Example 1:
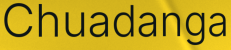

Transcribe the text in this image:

Chuadanga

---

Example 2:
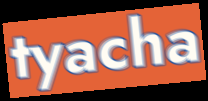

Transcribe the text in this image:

tyacha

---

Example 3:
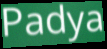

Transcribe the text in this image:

Padya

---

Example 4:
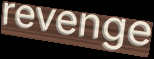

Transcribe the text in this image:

revenge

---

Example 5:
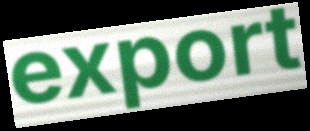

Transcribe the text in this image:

export